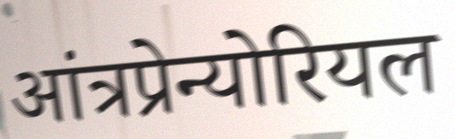
आंत्रप्रेन्योरियल